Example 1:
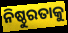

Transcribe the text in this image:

ନିଷ୍ଠୁରତାକୁ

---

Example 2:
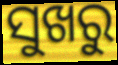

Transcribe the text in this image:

ସୁଖରୁ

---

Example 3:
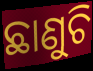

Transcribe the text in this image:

ଛାଣୁଚି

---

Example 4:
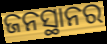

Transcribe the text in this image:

ଜନସ୍ଥାନର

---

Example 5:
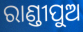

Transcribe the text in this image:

ରାଣ୍ଡୀପୁଅ